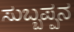
ಸುಬ್ಬಪ್ಪನ